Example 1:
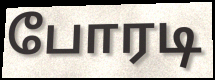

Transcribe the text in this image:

போரடி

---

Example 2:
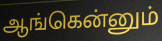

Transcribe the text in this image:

ஆங்கென்னும்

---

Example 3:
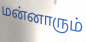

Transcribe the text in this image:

மன்னாரும்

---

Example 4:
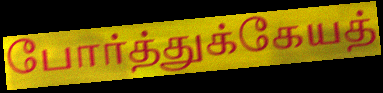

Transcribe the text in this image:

போர்த்துக்கேயத்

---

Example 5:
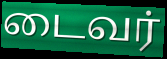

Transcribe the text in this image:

டைவர்